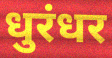
धुरंधर